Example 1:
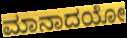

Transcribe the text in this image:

ಮಾನಾದಯೋ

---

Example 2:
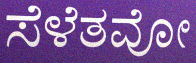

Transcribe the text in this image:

ಸೆಳೆತವೋ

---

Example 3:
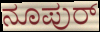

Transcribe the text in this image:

ನೂಪುರ್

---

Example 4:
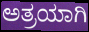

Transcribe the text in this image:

ಅತ್ರಯಾಗಿ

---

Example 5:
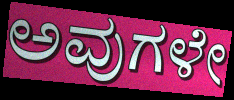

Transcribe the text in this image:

ಅವುಗಳೇ